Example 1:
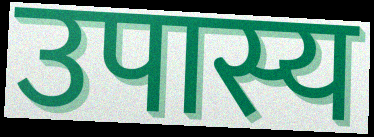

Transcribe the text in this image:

उपास्य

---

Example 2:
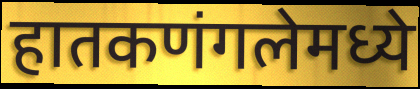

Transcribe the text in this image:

हातकणंगलेमध्ये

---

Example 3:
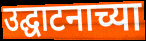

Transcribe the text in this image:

उद्घाटनाच्या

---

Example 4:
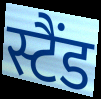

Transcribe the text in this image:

स्टैंड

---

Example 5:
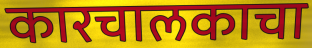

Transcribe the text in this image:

कारचालकाचा